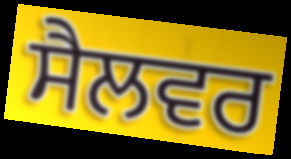
ਸੈਲਵਰ